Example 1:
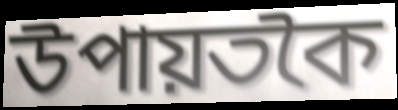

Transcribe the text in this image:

উপায়তকৈ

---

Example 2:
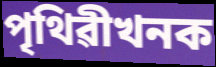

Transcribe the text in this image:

পৃথিৱীখনক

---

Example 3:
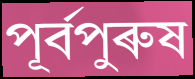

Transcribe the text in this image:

পূৰ্বপুৰুষ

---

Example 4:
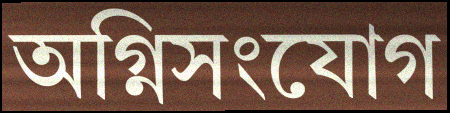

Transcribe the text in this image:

অগ্নিসংযোগ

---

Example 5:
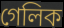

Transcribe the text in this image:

গেলিক